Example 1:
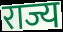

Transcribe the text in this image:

राज्य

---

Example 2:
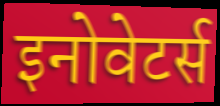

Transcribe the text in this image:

इनोवेटर्स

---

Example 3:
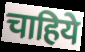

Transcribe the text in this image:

चाहिये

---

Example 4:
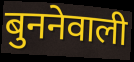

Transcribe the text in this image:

बुननेवाली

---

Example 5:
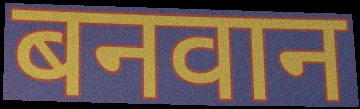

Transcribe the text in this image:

बनवान